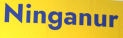
Ninganur